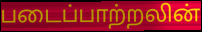
படைப்பாற்றலின்